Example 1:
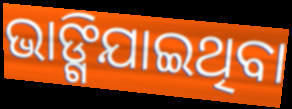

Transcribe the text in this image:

ଭାଙ୍ଗିଯାଇଥିବା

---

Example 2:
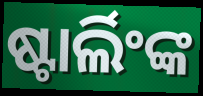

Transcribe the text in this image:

ଷ୍ଟାର୍ଲିଂଙ୍କ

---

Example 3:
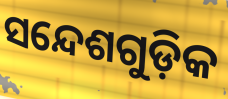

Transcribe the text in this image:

ସନ୍ଦେଶଗୁଡ଼ିକ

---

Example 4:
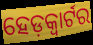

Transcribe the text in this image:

ହେଡ଼କ୍ୱାର୍ଟର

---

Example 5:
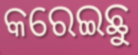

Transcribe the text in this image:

କରେଇଛୁ